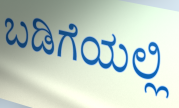
ಬಡಿಗೆಯಲ್ಲಿ